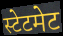
स्टेटमेट